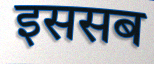
इससब